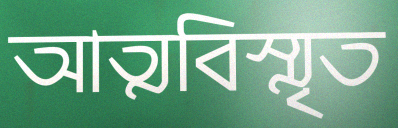
আত্মবিস্মৃত